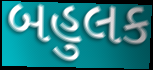
બહુલક